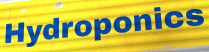
Hydroponics